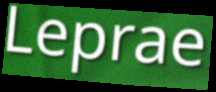
Leprae